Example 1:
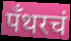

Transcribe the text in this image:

पँथरचं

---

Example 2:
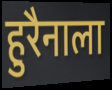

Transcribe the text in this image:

हुरैनाला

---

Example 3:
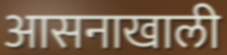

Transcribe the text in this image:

आसनाखाली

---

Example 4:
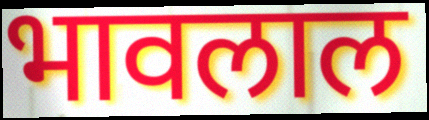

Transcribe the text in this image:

भावलाल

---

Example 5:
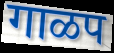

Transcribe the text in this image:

गाळप